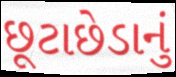
છૂટાછેડાનું